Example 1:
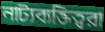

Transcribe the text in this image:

নাট্যব্যক্তিত্বরা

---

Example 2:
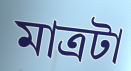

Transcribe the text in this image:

মাত্রটা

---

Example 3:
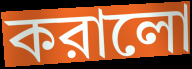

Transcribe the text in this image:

করালো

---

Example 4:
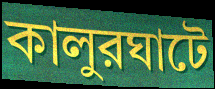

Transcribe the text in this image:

কালুরঘাটে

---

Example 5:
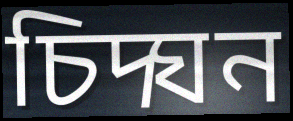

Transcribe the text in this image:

চিদ্ঘন